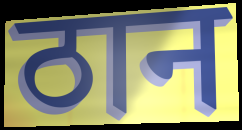
ठान